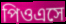
পিওএসে